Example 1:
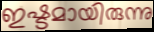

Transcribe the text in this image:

ഇഷ്ടമായിരുന്നു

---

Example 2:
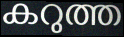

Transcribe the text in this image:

കറുത്ത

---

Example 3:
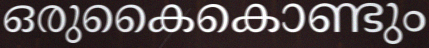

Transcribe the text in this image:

ഒരുകൈകൊണ്ടും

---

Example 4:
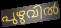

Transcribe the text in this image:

പുഴുവിൽ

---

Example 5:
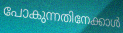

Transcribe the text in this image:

പോകുന്നതിനേക്കാൾ